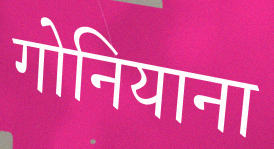
गोनियाना